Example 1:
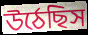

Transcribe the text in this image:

উঠেছিস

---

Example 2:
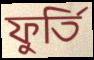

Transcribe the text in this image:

ফুর্তি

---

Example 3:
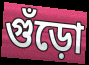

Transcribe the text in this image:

গুঁড়ো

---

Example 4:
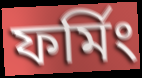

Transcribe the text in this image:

ফর্মিং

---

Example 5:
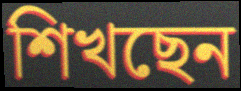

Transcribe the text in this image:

শিখছেন